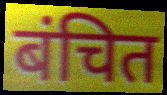
बंचित